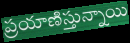
ప్రయాణిస్తున్నాయి